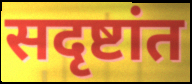
सदृष्टांत